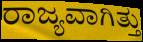
ರಾಜ್ಯವಾಗಿತ್ತು